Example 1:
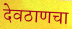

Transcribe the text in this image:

देवठाणचा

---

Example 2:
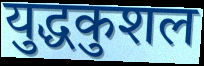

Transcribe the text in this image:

युद्धकुशल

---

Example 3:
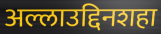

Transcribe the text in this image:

अल्लाउद्दिनशहा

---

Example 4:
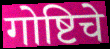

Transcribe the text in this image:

गोष्टिचे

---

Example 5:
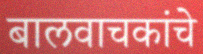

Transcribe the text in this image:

बालवाचकांचे